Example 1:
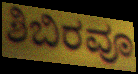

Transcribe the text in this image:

ಶಿಬಿರವೂ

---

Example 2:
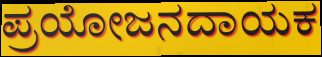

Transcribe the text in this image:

ಪ್ರಯೋಜನದಾಯಕ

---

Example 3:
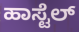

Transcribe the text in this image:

ಹಾಸ್ಟೆಲ್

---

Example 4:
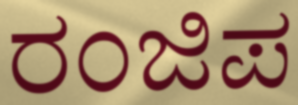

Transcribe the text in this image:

ರಂಜಿಪ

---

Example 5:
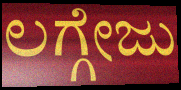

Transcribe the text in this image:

ಲಗ್ಗೇಜು